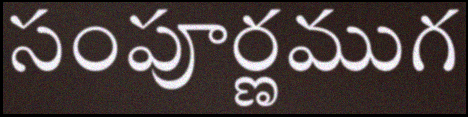
సంపూర్ణముగ